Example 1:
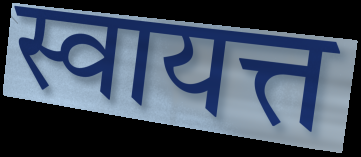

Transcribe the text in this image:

स्वायत्त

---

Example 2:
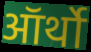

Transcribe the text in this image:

ऑर्थो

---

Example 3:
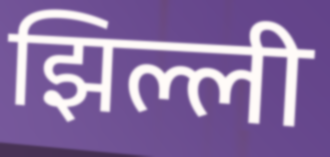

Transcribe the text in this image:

झिल्ली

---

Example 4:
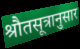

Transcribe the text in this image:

श्रौतसूत्रानुसार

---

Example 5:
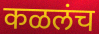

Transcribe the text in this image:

कळलंच